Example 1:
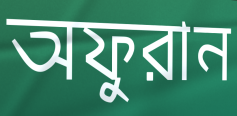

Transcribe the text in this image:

অফুরান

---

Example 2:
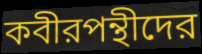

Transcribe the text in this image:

কবীরপন্থীদের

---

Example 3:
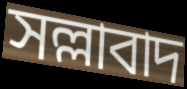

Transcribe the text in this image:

সল্লাবাদ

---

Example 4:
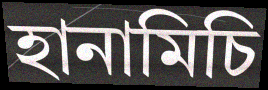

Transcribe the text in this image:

হানামিচি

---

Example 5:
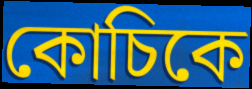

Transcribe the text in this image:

কোচিকে